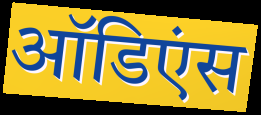
ऑडिएंस